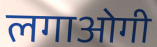
लगाओगी